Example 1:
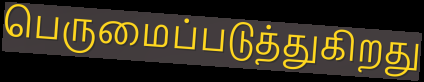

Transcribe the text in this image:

பெருமைப்படுத்துகிறது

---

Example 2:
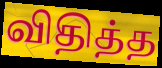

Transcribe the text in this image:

விதித்த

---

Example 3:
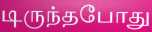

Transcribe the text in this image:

டிருந்தபோது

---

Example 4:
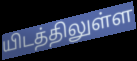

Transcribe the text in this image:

யிடத்திலுள்ள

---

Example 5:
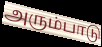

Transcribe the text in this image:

அரும்பாடு